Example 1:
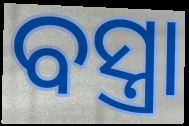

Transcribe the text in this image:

ବସ୍ତ୍ରା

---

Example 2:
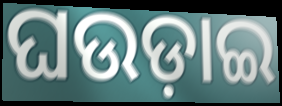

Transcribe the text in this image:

ଘଉଡ଼ାଇ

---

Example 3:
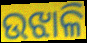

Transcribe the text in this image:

ଉଝାଳି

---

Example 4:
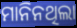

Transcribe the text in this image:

ମାନିନଥିଲା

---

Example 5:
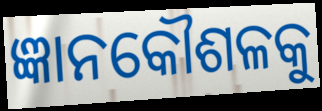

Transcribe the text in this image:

ଜ୍ଞାନକୌଶଳକୁ